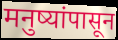
मनुष्यांपासून